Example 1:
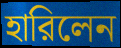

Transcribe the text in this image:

হারিলেন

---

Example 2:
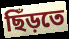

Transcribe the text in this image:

ছিঁড়তে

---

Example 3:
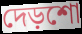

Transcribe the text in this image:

দেড়শো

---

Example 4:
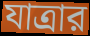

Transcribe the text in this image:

যাত্রার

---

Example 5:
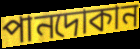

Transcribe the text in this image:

পানদোকান